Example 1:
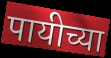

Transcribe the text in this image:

पायीच्या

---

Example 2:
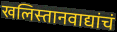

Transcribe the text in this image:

खलिस्तानवाद्यांचं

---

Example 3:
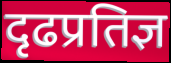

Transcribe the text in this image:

दृढप्रतिज्ञ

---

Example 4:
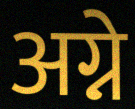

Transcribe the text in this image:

अग्ने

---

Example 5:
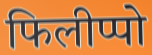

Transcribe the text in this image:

फिलीप्पो